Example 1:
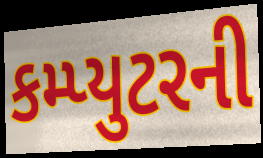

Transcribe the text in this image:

કમ્પ્યુટરની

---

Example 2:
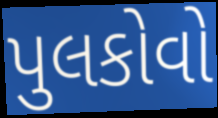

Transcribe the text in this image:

પુલકોવો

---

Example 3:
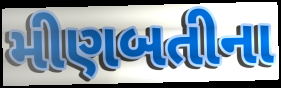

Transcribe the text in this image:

મીણબતીના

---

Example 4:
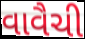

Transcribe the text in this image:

વાવૈચી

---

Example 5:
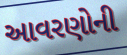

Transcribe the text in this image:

આવરણોની